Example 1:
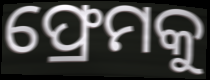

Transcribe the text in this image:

ଫ୍ରେମକୁ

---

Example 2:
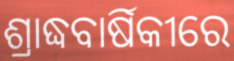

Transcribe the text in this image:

ଶ୍ରାଦ୍ଧବାର୍ଷିକୀରେ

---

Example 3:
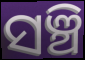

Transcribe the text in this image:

ସଞ୍ଚି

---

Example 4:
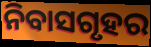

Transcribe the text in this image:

ନିବାସଗୃହର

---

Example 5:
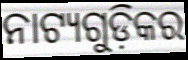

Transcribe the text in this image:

ନାଟ୍ୟଗୁଡ଼ିକର